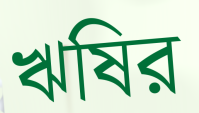
ঋষির